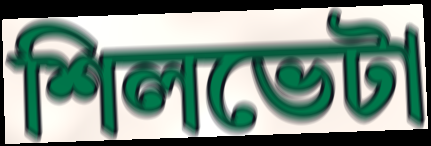
শিলভেটা